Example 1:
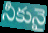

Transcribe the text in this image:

నీకునై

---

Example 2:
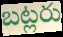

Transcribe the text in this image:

బట్లరు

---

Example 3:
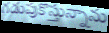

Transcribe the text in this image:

గడుపుకొస్తున్నాను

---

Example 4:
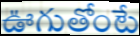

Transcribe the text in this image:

ఊగుతోంటే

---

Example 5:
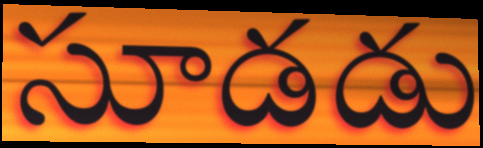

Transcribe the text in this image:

సూడడు